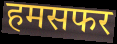
हमसफर